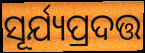
ସୂର୍ଯ୍ୟପ୍ରଦତ୍ତ